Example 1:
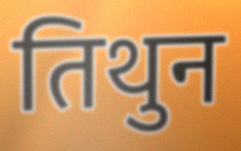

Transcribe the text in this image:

तिथुन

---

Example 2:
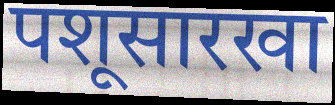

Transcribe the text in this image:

पशूसारखा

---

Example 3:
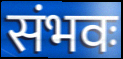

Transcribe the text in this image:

संभवः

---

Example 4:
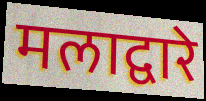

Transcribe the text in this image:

मलाद्वारे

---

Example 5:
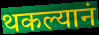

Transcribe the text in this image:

थकल्यानं